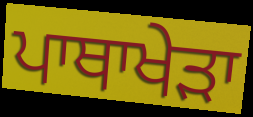
ਪਾਥਾਖੇੜਾ